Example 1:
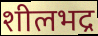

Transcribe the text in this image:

शीलभद्र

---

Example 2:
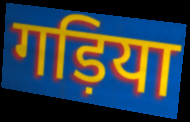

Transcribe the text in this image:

गड़िया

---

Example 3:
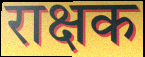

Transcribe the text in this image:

राक्षक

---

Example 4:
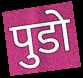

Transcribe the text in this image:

पुडो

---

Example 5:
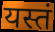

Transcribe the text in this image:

यस्तं